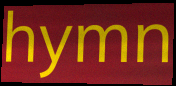
hymn